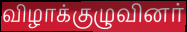
விழாக்குழுவினர்